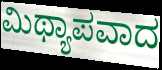
ಮಿಥ್ಯಾಪವಾದ